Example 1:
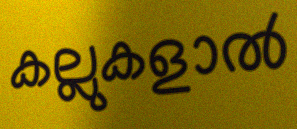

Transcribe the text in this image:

കല്ലുകളാൽ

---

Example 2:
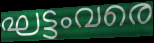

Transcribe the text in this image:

ഘട്ടംവരെ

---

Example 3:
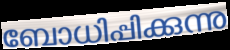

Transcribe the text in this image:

ബോധിപ്പിക്കുന്നു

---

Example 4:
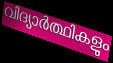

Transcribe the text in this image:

വിദ്യാർത്ഥികളും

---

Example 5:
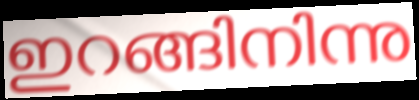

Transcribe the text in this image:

ഇറങ്ങിനിന്നു